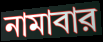
নামাবার